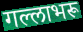
गल्लाभरू